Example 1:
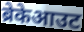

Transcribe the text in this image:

ब्रेकेआउट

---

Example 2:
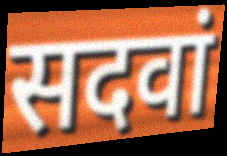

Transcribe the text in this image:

सदवां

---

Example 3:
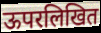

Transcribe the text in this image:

ऊपरलिखित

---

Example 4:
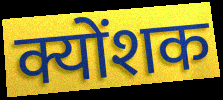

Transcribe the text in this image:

क्योंशक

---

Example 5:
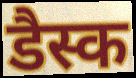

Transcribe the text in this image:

डैस्क